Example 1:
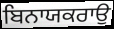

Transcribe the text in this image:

ਬਿਨਾਯਕਰਾਉ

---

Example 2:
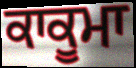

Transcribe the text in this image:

ਕਾਕੂਮਾ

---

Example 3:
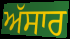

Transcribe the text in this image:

ਅੱਸਾਰ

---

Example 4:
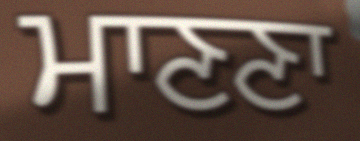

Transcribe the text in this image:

ਮਾਣਣਾ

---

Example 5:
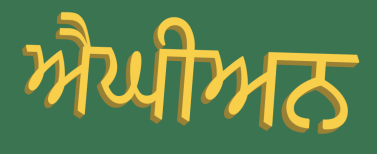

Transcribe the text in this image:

ਐਘੀਅਨ